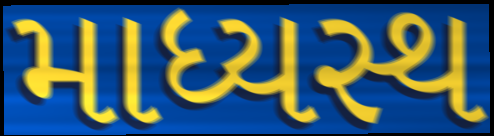
માધ્યસ્થ